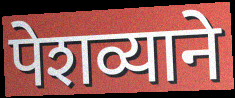
पेशव्याने